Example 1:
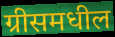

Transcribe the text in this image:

ग्रीसमधील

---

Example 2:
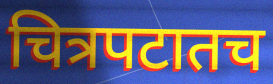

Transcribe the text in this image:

चित्रपटातच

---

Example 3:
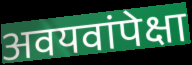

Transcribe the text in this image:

अवयवांपेक्षा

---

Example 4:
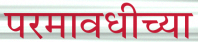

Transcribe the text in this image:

परमावधीच्या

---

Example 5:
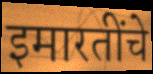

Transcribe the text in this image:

इमारतींचे